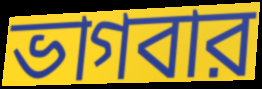
ভাগবার